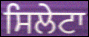
ਸਿਲੇਟਾ